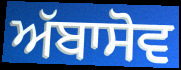
ਅੱਬਾਸੋਵ